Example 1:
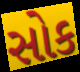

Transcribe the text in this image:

સોક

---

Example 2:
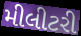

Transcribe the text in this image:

મીલીટરી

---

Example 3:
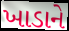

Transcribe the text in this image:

ખાડાને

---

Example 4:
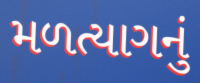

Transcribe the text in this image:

મળત્યાગનું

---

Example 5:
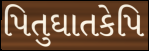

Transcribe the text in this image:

પિતુઘાતકેપિ